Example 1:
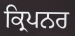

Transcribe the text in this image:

ਕ੍ਰਿਪਨਰ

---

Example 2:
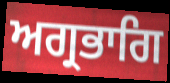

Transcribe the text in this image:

ਅਗ੍ਰਭਾਗਿ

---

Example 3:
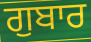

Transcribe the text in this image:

ਗੁਬਾਰ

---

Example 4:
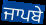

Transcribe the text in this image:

ਜਾਪਬੇ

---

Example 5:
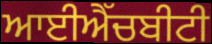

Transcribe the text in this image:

ਆਈਐੱਚਬੀਟੀ